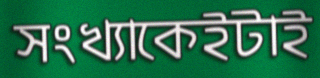
সংখ্যাকেইটাই